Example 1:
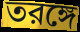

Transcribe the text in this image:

তরঙ্গে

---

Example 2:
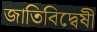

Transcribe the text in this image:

জাতিবিদ্বেষী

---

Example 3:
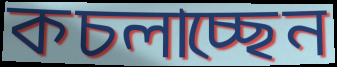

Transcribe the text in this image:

কচলাচ্ছেন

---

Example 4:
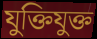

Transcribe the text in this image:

যুক্তিযুক্ত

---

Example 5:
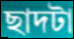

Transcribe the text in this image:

ছাদটা